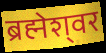
ब्रह्मेश्वर